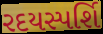
રદયસ્પર્શિ